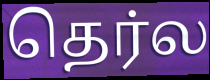
தெர்ல